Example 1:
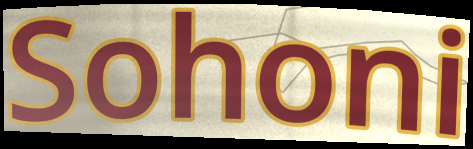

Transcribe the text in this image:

Sohoni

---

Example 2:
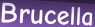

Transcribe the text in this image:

Brucella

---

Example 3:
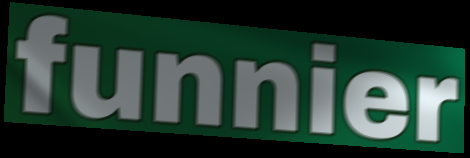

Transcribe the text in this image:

funnier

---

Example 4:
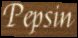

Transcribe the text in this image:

Pepsin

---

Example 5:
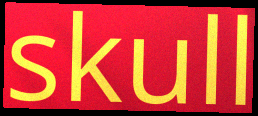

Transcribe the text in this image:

skull